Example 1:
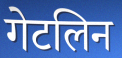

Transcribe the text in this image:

गेटलिन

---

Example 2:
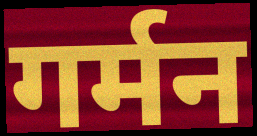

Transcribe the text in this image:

गर्मन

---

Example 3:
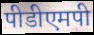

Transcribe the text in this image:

पीडीएमपी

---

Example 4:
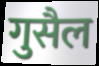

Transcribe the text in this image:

गुसैल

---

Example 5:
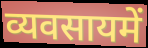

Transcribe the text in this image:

व्यवसायमें